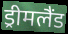
ड्रीमलैंड